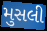
મુસલી